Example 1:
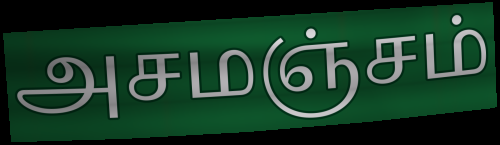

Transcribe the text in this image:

அசமஞ்சம்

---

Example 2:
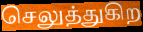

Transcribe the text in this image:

செலுத்துகிற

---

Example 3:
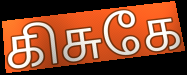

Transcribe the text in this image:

கிசுகே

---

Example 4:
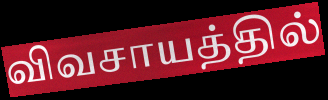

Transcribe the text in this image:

விவசாயத்தில்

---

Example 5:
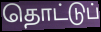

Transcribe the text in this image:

தொட்டுப்